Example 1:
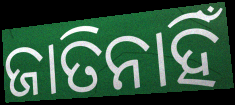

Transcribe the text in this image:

ଜାତିନାହିଁ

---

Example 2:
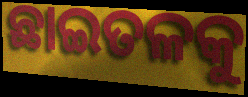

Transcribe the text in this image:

ଛାଇତଳକୁ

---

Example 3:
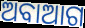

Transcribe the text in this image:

ଅବାଆଗ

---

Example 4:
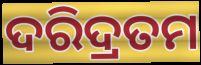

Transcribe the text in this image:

ଦରିଦ୍ରତମ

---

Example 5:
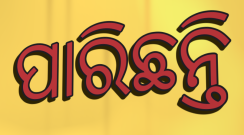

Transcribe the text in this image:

ପାରିଛନ୍ତି